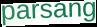
parsang